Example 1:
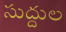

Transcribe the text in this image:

సుద్దుల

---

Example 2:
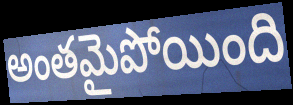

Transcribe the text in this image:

అంతమైపోయింది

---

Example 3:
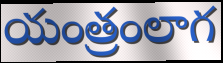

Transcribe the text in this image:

యంత్రంలాగ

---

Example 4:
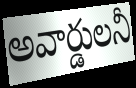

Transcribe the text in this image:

అవార్డులనీ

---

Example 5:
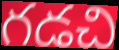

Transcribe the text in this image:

గడచి